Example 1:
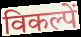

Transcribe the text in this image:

विकल्पें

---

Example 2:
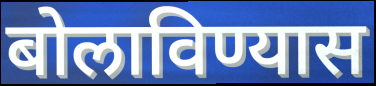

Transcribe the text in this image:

बोलाविण्यास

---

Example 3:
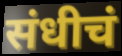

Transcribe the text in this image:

संधीचं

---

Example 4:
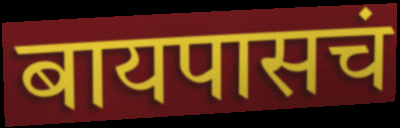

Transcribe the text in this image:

बायपासचं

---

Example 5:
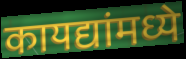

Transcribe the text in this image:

कायद्यांमध्ये